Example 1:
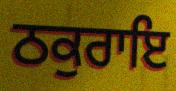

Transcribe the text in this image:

ਠਕੁਰਾਇ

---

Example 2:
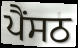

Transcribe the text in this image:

ਪੈਂਸਠ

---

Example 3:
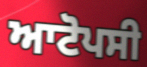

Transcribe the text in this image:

ਆਟੋਪਸੀ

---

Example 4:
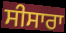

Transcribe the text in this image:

ਸੀਸਾਰਾ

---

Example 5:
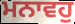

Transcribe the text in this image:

ਮਨਾਵਹੁ